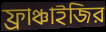
ফ্রাঞ্চাইজির